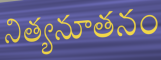
నిత్యనూతనం